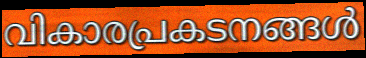
വികാരപ്രകടനങ്ങൾ